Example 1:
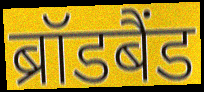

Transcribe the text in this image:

ब्रॉडबैंड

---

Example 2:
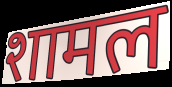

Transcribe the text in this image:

शामल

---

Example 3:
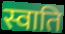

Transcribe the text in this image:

स्वाति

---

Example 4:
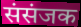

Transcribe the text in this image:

संसंजक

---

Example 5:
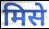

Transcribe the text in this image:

मिसे